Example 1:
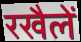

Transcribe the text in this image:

रखैलें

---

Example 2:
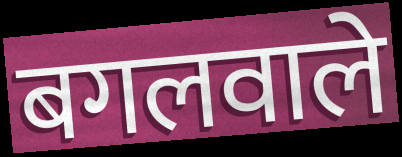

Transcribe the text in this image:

बगलवाले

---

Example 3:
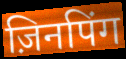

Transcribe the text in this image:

ज़िनपिंग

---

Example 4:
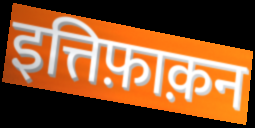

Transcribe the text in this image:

इत्तिफ़ाक़न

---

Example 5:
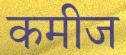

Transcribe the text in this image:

कमीज